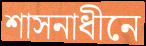
শাসনাধীনে